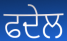
ਫਦੇਲ